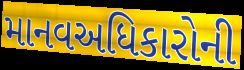
માનવઅધિકારોની